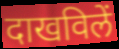
दाखविलें